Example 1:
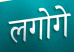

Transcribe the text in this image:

लगोगे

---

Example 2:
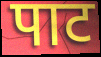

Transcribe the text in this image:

पाट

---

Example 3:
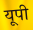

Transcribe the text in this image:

यूपी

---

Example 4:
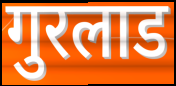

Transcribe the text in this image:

गुरलाड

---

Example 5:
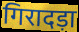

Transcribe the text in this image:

गिरादड़ा